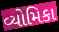
વ્યોમિકા